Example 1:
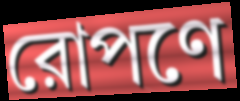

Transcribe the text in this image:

রোপণে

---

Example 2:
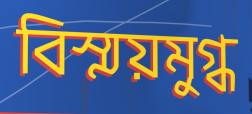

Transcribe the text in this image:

বিস্ময়মুগ্ধ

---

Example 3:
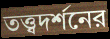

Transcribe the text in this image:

তত্ত্বদর্শনের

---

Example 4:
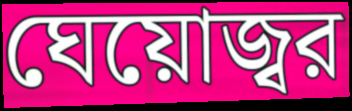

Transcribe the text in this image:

ঘেয়োজ্বর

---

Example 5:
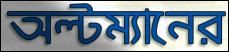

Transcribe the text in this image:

অল্টম্যানের